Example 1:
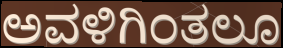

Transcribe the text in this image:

ಅವಳಿಗಿಂತಲೂ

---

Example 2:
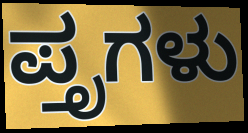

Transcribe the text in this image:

ಪ್ತೃಗಳು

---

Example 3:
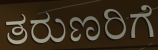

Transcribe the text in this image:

ತರುಣರಿಗೆ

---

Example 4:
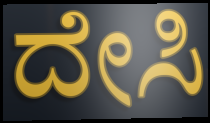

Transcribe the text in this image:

ದೇಸಿ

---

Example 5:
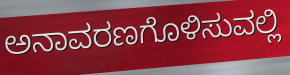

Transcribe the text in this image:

ಅನಾವರಣಗೊಳಿಸುವಲ್ಲಿ